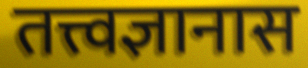
तत्त्वज्ञानास